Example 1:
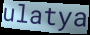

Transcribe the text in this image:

ulatya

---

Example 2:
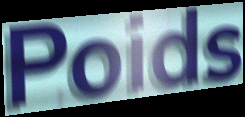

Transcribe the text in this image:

Poids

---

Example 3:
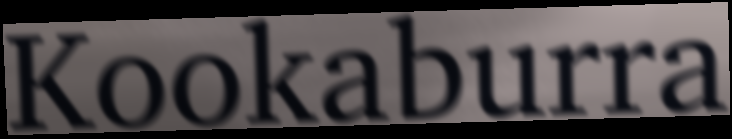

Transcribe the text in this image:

Kookaburra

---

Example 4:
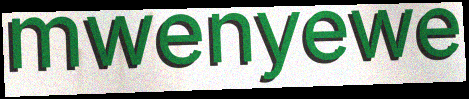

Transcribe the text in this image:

mwenyewe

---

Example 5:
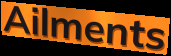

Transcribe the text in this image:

Ailments